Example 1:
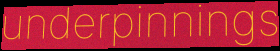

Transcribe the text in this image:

underpinnings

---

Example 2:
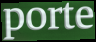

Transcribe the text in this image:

porte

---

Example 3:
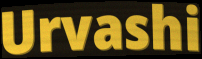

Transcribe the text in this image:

Urvashi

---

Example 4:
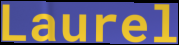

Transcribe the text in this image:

Laurel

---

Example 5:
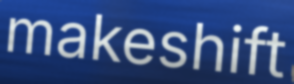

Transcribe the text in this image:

makeshift